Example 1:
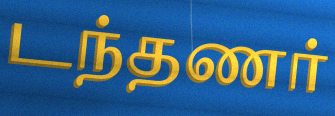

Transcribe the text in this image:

டந்தணர்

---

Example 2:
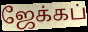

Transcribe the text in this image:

ஜேக்கப்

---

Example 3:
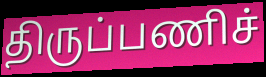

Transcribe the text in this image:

திருப்பணிச்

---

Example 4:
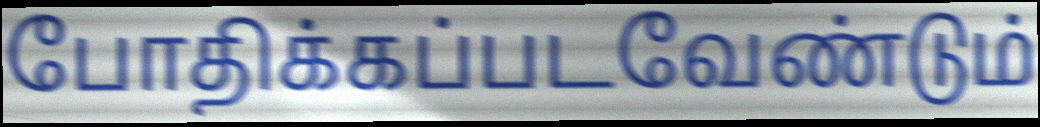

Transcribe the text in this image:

போதிக்கப்படவேண்டும்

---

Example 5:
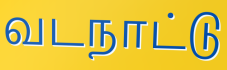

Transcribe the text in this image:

வடநாட்டு